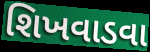
શિખવાડવા